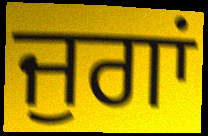
ਜੁਗਾਂ